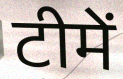
टीमें